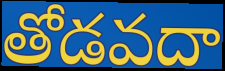
తోడవదా